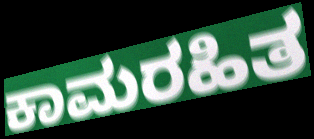
ಕಾಮರಹಿತ